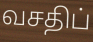
வசதிப்